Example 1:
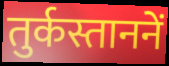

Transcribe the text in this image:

तुर्कस्ताननें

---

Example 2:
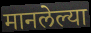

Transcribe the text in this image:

मानलेल्या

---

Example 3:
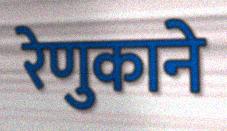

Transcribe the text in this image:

रेणुकाने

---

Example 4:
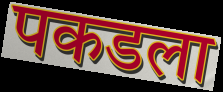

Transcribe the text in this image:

पकडला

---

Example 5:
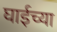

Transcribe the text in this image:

घाईच्या